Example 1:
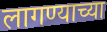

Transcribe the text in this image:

लागण्याच्या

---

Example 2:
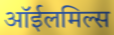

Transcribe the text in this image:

ऑईलमिल्स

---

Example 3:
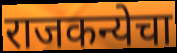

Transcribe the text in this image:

राजकन्येचा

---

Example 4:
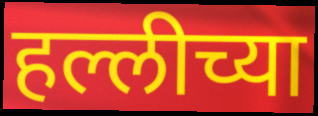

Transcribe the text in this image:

हल्लीच्या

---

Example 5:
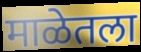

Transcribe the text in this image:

माळेतला